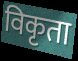
विकृता